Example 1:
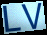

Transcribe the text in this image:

LV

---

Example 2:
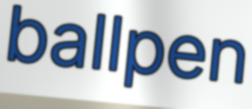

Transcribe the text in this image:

ballpen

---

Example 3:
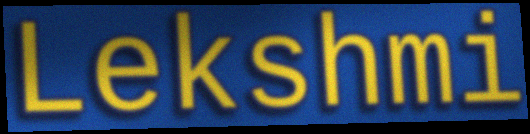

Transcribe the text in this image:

Lekshmi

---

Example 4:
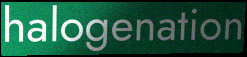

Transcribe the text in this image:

halogenation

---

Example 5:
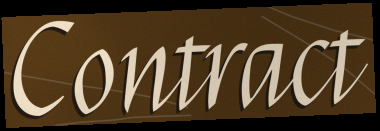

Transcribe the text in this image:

Contract